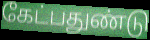
கேட்பதுண்டு